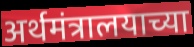
अर्थमंत्रालयाच्या